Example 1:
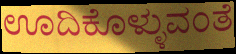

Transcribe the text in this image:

ಊದಿಕೊಳ್ಳುವಂತೆ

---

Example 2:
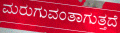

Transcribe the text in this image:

ಮರುಗುವಂತಾಗುತ್ತದೆ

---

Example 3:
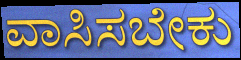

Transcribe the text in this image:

ವಾಸಿಸಬೇಕು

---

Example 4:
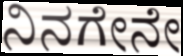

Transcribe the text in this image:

ನಿನಗೇನೇ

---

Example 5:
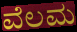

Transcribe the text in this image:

ವೆಲಮ